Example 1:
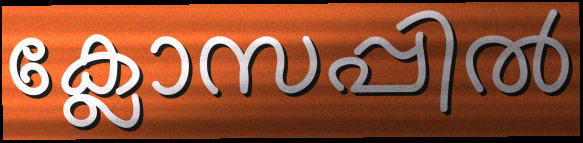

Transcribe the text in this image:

ക്ലോസപ്പിൽ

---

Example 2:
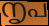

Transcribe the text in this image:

നൃപ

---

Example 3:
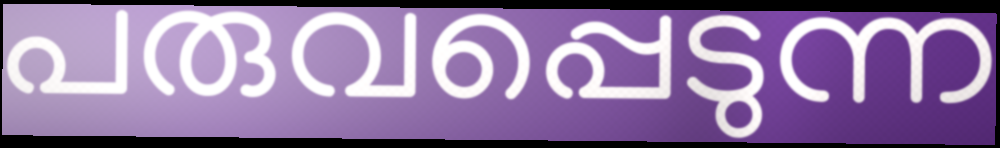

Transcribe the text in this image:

പരുവപ്പെടുന്ന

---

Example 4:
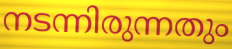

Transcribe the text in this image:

നടന്നിരുന്നതും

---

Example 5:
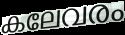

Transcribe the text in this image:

കലേവരം